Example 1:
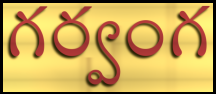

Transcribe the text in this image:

గర్వంగ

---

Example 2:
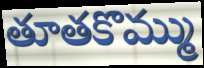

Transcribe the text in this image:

తూతకొమ్ము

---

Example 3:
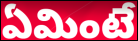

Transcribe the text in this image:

ఏమింటే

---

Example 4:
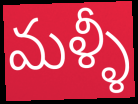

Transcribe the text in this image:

మళ్ళీ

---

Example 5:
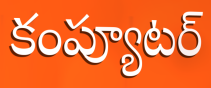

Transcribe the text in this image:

కంప్యూటర్